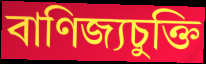
বাণিজ্যচুক্তি